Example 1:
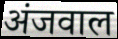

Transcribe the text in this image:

अंजवाल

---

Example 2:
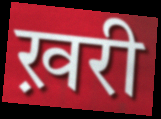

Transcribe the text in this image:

ख़री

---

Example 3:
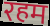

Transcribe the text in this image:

रहम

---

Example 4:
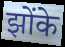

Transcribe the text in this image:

झोंके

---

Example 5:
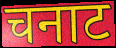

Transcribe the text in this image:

चनाट